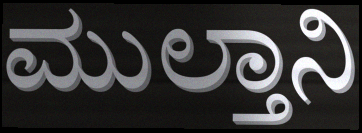
ಮುಲ್ತಾನಿ